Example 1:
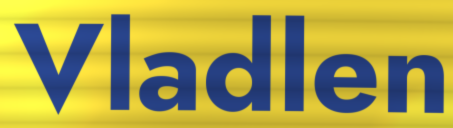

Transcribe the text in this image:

Vladlen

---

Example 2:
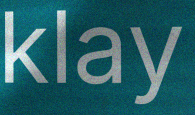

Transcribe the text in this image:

klay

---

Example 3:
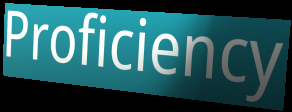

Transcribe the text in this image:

Proficiency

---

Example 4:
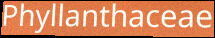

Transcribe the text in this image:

Phyllanthaceae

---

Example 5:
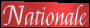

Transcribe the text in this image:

Nationale